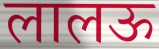
लालऊ